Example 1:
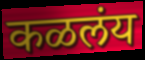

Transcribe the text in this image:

कळलंय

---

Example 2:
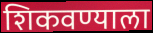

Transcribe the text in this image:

शिकवण्याला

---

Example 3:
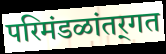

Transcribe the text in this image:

परिमंडळांतर्गत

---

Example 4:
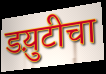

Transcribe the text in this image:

डय़ुटीचा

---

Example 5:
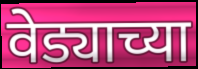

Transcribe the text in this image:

वेड्याच्या